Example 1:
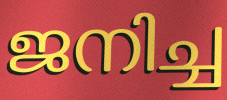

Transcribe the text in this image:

ജനിച്ച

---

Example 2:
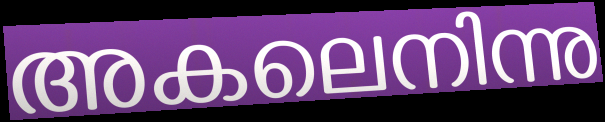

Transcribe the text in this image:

അകലെനിന്നു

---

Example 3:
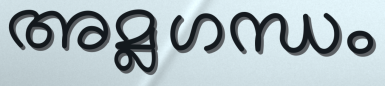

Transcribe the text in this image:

അമ്ലഗന്ധം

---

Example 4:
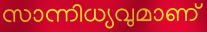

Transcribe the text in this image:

സാന്നിധ്യവുമാണ്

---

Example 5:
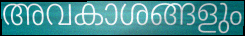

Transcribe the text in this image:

അവകാശങ്ങളും